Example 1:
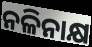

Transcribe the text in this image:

ନଳିନାକ୍ଷ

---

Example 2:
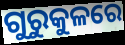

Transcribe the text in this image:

ଗୁରୁକୁଳରେ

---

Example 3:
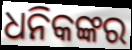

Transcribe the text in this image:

ଧନିକଙ୍କର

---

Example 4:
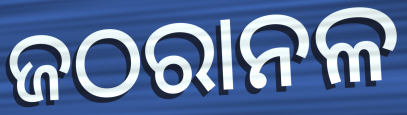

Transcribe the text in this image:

ଜଠରାନଳ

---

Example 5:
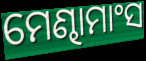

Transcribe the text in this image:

ମେଣ୍ଢାମାଂସ